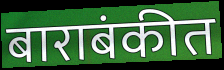
बाराबंकीत